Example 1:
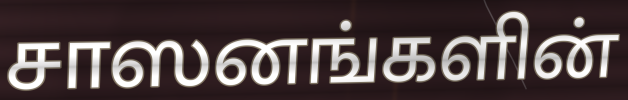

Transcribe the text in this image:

சாஸனங்களின்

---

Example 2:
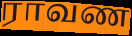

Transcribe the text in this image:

ராவண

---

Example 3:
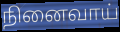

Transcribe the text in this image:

நினைவாய்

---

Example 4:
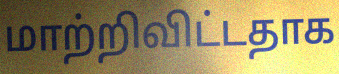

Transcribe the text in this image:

மாற்றிவிட்டதாக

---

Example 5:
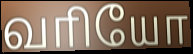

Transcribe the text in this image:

வரியோ